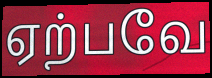
ஏற்பவே